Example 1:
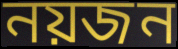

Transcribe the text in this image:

নয়জন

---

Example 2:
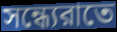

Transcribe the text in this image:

সন্ধ্যেরাতে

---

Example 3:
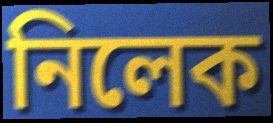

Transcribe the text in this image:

নিলেক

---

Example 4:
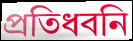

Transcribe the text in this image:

প্রতিধবনি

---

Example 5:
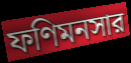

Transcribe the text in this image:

ফণিমনসার